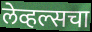
लेव्हल्सचा